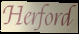
Herford